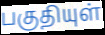
பகுதியுள்